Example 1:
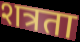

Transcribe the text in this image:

शत्रता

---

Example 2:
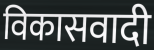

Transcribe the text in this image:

विकासवादी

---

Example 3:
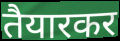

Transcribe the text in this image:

तैयारकर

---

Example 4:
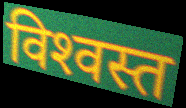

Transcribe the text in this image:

विश्‍वस्त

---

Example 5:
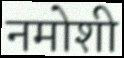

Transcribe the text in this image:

नमोशी